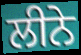
ਲੀਨੇ